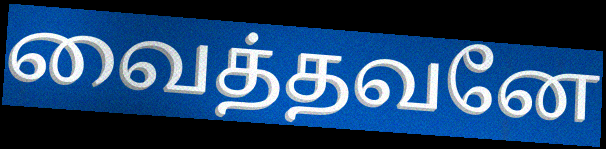
வைத்தவனே